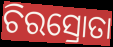
ଚିରସ୍ରୋତା